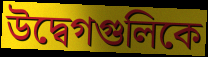
উদ্বেগগুলিকে